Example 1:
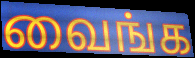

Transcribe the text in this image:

வைங்க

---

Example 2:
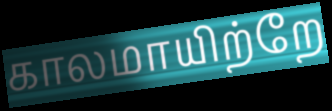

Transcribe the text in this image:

காலமாயிற்றே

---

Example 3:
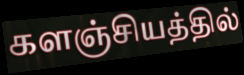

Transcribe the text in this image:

களஞ்சியத்தில்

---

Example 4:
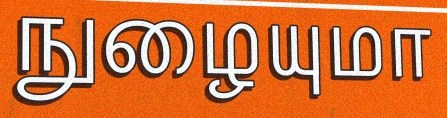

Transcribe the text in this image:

நுழையுமா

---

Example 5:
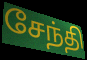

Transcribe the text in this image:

சேந்தி